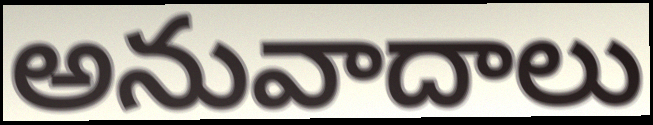
అనువాదాలు